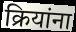
क्रियांना